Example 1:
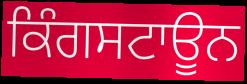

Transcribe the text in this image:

ਕਿੰਗਸਟਾਊਨ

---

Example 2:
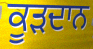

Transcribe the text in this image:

ਕੂੜਦਾਨ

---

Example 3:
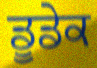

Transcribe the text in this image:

ਡੂਡੇਕ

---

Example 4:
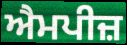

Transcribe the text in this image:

ਐਮਪੀਜ਼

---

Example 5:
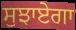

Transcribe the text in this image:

ਸੁਝਾਏਗਾ